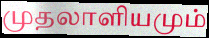
முதலாளியமும்